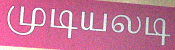
முடியலடி